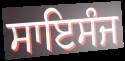
ਸਾਇਸੰਜ